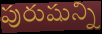
పురుషున్ని